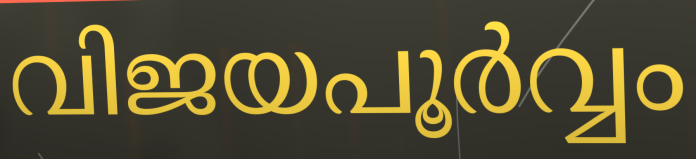
വിജയപൂർവ്വം